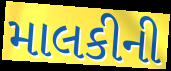
માલકીની